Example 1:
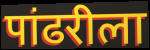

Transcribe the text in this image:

पांढरीला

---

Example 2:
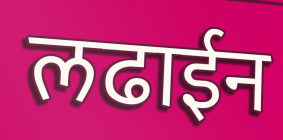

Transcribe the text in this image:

लढाईन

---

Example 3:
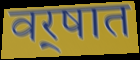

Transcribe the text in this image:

वर्षात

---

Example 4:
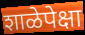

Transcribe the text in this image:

शाळेपेक्षा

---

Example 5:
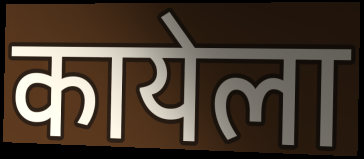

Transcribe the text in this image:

कायेला